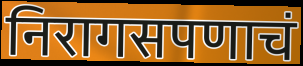
निरागसपणाचं